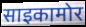
साइकामोर